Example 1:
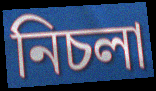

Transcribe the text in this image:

নিচলা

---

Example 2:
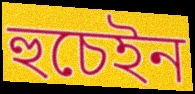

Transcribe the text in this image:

হুচেইন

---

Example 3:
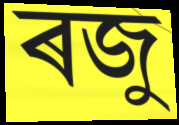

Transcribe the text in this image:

ৰজু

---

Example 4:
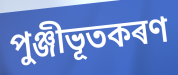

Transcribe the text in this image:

পুঞ্জীভূতকৰণ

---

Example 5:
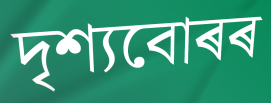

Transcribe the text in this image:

দৃশ্যবোৰৰ